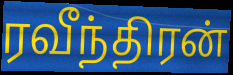
ரவீந்திரன்